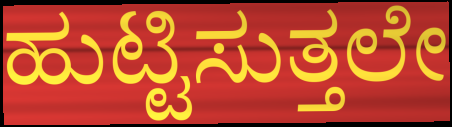
ಹುಟ್ಟಿಸುತ್ತಲೇ